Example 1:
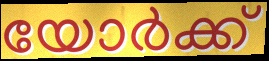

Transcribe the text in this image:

യോർക്ക്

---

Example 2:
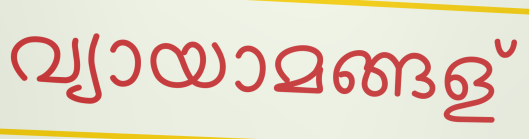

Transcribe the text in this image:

വ്യായാമങ്ങള്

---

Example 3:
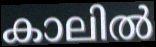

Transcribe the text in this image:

കാലിൽ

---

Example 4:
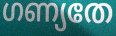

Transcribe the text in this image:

ഗണ്യതേ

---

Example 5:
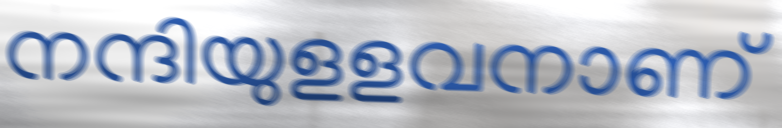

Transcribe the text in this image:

നന്ദിയുളളവനാണ്